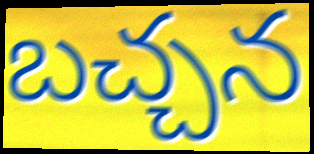
బచ్చన